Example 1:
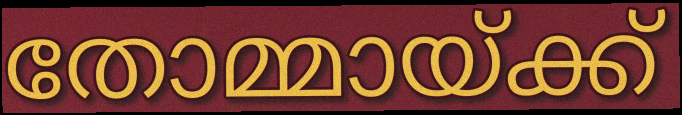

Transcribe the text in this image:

തോമ്മായ്ക്ക്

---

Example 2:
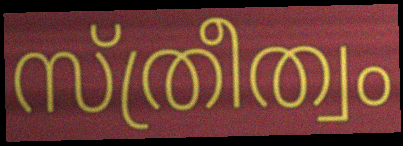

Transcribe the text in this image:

സ്ത്രീത്വം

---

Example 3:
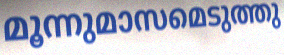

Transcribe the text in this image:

മൂന്നുമാസമെടുത്തു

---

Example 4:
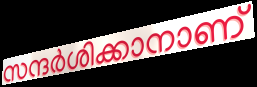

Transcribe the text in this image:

സന്ദർശിക്കാനാണ്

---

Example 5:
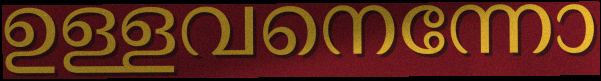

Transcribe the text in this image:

ഉള്ളവനെന്നോ